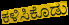
ಕಳಿಸಿಕೊಡು